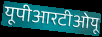
यूपीआरटीओयू